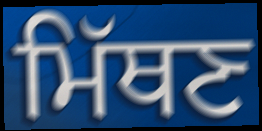
ਮਿੱਥਣ